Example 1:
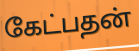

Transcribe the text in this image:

கேட்பதன்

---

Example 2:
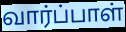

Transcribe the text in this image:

வார்ப்பாள்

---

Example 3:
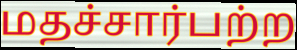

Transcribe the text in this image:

மதச்சார்பற்ற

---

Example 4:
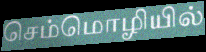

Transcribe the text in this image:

செம்மொழியில்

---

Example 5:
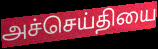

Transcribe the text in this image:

அச்செய்தியை